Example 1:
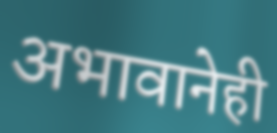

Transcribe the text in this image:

अभावानेही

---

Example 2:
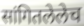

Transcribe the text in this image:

सांगितलेलेच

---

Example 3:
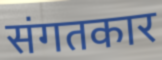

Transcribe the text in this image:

संगतकार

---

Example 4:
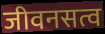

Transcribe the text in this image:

जीवनसत्व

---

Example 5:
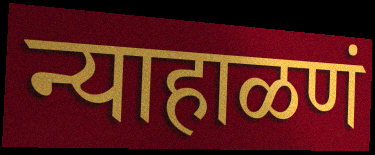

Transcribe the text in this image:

न्याहाळणं